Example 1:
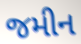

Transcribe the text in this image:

જમીન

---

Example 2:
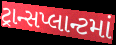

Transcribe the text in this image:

ટ્રાન્સપ્લાન્ટમાં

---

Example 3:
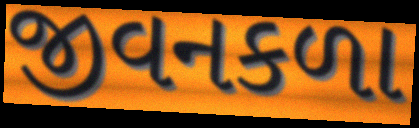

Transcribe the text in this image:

જીવનકળા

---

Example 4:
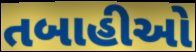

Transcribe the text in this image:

તબાહીઓ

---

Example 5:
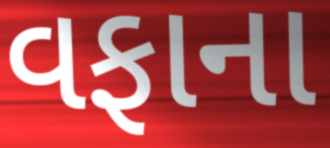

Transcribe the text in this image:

વફાના